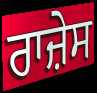
ਰਾਜ਼ੇਸ